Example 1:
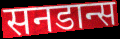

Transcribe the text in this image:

सनडान्स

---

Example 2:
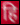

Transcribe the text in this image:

हि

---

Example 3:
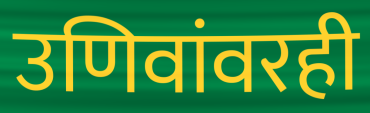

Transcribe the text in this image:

उणिवांवरही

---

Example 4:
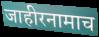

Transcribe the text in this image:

जाहीरनामाच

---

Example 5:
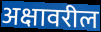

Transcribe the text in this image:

अक्षावरील